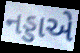
નડ્ડાએ